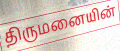
திருமனையின்